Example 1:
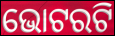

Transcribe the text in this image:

ଭୋଟରଟି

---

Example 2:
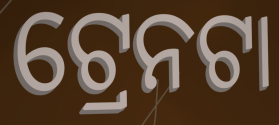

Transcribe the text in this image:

ଟ୍ରେନଟା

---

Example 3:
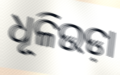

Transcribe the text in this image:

ଧୂଳିଉଡ଼ା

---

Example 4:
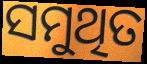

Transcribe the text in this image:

ସମୁଥିତ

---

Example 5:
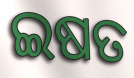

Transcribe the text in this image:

ଇଷତ